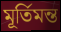
মূর্তিমন্ত